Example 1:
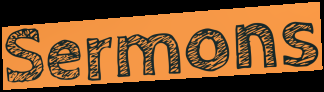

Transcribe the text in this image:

Sermons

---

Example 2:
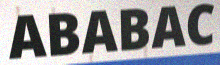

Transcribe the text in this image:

ABABAC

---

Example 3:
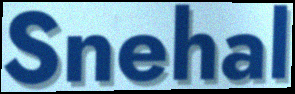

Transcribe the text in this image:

Snehal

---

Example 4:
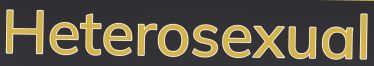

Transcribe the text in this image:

Heterosexual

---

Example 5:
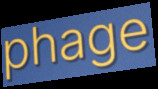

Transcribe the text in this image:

phage